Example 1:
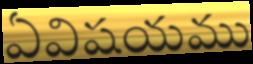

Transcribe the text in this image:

ఏవిషయము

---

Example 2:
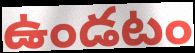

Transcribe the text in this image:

ఉండటం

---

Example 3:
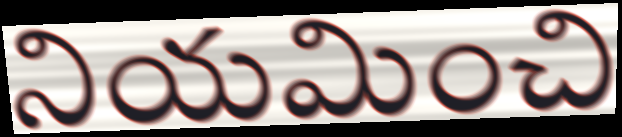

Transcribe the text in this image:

నియమించి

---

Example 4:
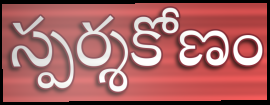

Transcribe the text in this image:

స్పర్శకోణం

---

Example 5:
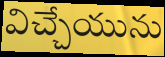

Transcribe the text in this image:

విచ్చేయును